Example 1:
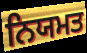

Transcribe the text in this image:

ਨਿਯਮਤ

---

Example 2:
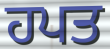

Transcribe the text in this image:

ਹਪਤ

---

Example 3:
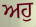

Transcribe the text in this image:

ਅਹੁ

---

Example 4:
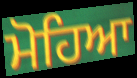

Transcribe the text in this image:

ਮੋਹਿਆ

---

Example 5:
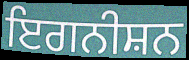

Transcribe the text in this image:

ਇਗਨੀਸ਼ਨ